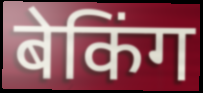
बेकिंग